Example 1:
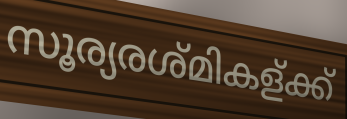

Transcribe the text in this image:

സൂര്യരശ്മികള്ക്ക്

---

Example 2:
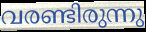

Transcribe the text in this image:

വരണ്ടിരുന്നു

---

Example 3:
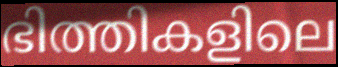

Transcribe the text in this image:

ഭിത്തികളിലെ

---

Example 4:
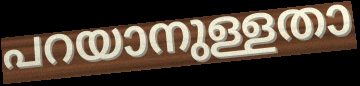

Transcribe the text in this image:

പറയാനുള്ളതാ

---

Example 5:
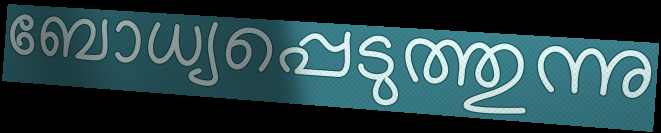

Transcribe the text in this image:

ബോധ്യപ്പെടുത്തുന്നു